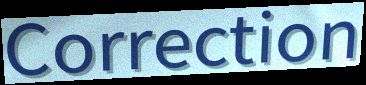
Correction